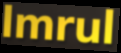
Imrul